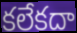
కలేకదా